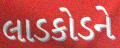
લાડકોડને